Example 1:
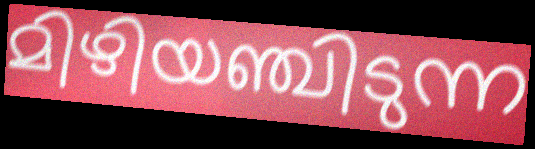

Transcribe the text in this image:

മിഴിയഞ്ചിടുന്ന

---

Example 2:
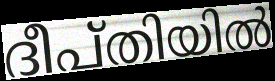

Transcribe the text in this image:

ദീപ്തിയിൽ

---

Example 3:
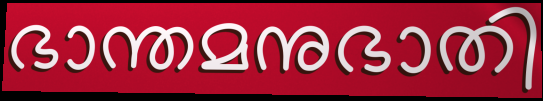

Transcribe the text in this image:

ഭാന്തമനുഭാതി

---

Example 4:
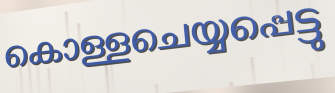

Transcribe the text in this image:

കൊള്ളചെയ്യപ്പെട്ടു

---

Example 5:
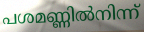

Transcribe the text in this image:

പശമണ്ണിൽനിന്ന്